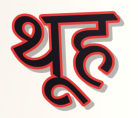
थूह